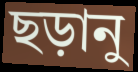
ছড়ানু